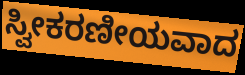
ಸ್ವೀಕರಣೀಯವಾದ